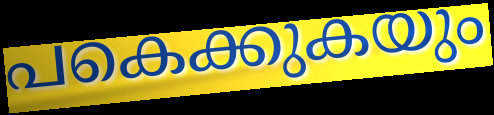
പകെക്കുകയും